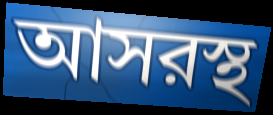
আসরস্থ